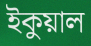
ইকুয়াল